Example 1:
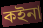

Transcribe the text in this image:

কইনা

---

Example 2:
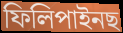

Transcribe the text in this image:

ফিলিপাইনছ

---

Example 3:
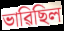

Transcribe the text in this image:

ভাৱিছিল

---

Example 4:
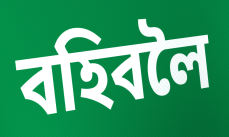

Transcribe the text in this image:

বহিবলৈ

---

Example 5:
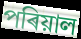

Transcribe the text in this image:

পৰিয়াল